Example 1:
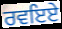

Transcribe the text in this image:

ਰਵਇਏ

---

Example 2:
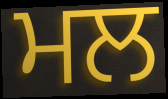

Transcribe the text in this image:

ਮਲ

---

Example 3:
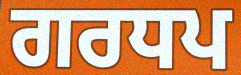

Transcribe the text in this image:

ਗਰਧਪ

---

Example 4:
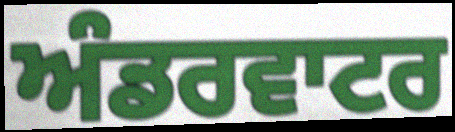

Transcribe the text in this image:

ਅੰਡਰਵਾਟਰ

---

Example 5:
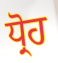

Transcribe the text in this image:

ਧ੍ਰੋਹ